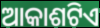
ଆକାଶଟିଏ